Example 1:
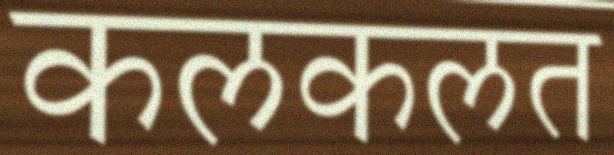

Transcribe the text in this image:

कलकलत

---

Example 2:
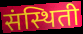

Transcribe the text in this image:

संस्थिती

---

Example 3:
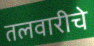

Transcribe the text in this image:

तलवारीचे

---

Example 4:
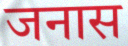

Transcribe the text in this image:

जनास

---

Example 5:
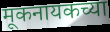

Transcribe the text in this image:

मूकनायकच्या